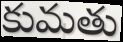
కుమతు